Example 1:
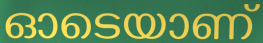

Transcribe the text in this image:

ഓടെയാണ്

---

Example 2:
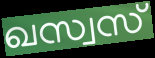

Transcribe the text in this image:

ഖസ്വസ്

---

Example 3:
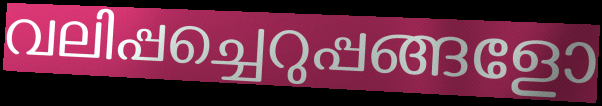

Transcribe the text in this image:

വലിപ്പച്ചെറുപ്പങ്ങളോ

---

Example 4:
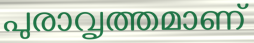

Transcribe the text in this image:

പുരാവൃത്തമാണ്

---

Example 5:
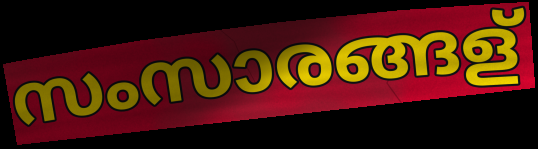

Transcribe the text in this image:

സംസാരങ്ങള്